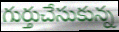
గుర్తుచేసుకున్న